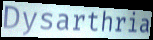
Dysarthria